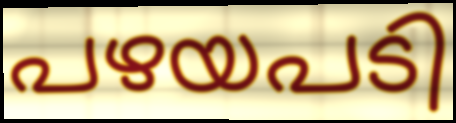
പഴയപടി